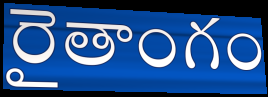
రైతాంగం